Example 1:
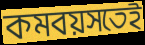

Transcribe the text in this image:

কমবয়সতেই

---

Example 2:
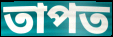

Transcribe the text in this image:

তাপত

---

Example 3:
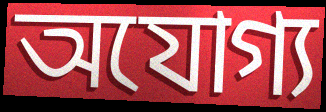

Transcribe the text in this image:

অযোগ্য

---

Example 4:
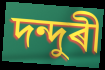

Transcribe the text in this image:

দন্দুৰী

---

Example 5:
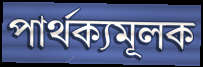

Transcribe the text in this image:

পাৰ্থক্যমূলক